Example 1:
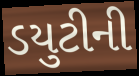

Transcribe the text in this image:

ડયુટીની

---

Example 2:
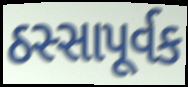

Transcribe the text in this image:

ઠસ્સાપૂર્વક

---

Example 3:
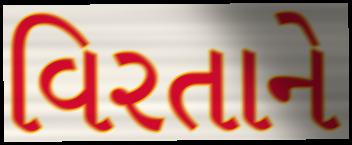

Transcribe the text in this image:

વિરતાને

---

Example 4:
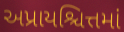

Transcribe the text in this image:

અપ્રાયશ્ચિત્તમાં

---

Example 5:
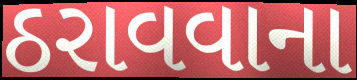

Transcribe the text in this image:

ઠરાવવાના